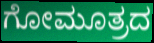
ಗೋಮೂತ್ರದ